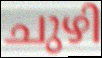
ചുഴി